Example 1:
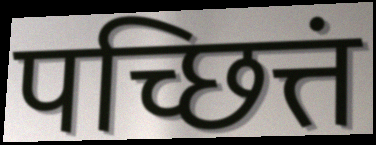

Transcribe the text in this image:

पच्छित्तं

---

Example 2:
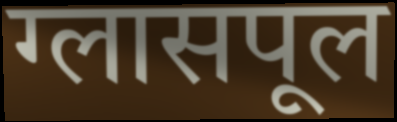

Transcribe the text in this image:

ग्लासपूल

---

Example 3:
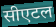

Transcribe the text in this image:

सीएटल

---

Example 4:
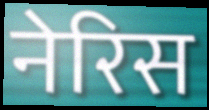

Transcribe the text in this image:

नेरिस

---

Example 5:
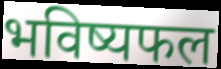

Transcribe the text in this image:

भविष्यफल